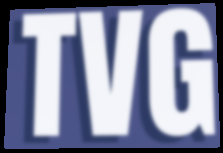
TVG